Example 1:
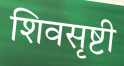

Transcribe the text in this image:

शिवसृष्टी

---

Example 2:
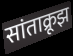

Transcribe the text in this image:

सांताक्रूझ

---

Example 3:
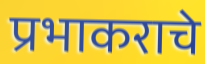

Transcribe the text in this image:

प्रभाकराचे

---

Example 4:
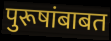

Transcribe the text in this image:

पुरूषांबाबत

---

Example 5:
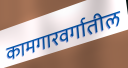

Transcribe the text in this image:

कामगारवर्गातील